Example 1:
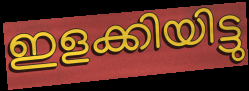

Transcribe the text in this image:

ഇളക്കിയിട്ടു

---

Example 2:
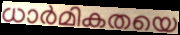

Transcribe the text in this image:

ധാർമികതയെ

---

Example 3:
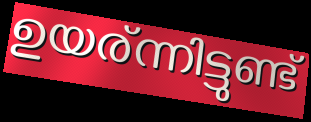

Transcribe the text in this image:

ഉയര്ന്നിട്ടുണ്ട്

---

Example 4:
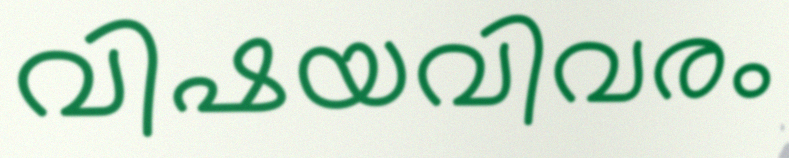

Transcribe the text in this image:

വിഷയവിവരം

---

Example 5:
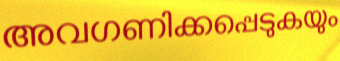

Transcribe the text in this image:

അവഗണിക്കപ്പെടുകയും